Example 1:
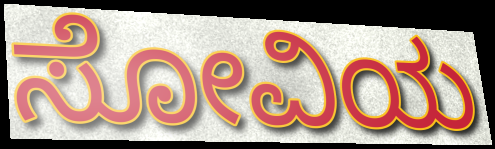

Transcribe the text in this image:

ಸೋವಿಯ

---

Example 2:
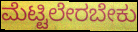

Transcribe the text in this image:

ಮೆಟ್ಟಿಲೇರಬೇಕು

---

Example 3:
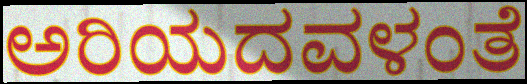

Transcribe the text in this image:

ಅರಿಯದವಳಂತೆ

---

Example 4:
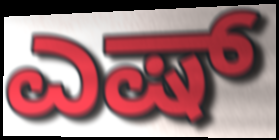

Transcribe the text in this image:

ಎಷ್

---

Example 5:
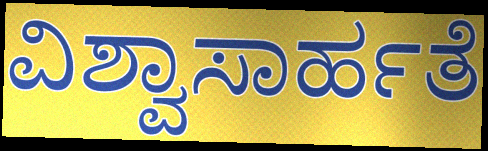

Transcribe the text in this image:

ವಿಶ್ವಾಸಾರ್ಹತೆ